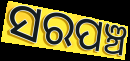
ସରପଞ୍ଚ